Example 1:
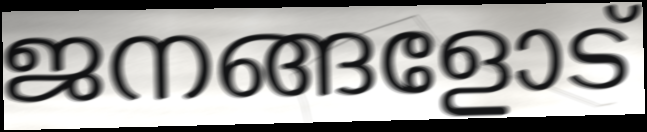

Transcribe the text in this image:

ജനങ്ങളോട്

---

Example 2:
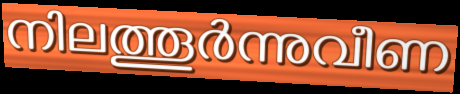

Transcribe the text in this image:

നിലത്തൂർന്നുവീണ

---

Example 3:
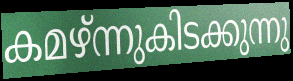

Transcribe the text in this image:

കമഴ്ന്നുകിടക്കുന്നു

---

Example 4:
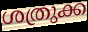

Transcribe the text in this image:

ശത്രുക്ക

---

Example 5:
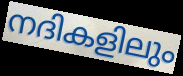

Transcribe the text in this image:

നദികളിലും